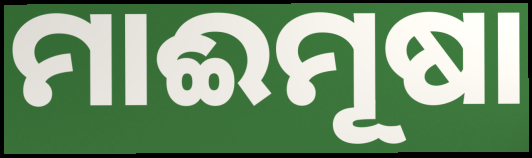
ମାଈମୂଷା